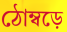
ঠোম্বড়ে